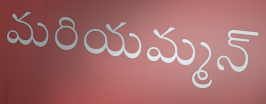
మరియమ్మన్